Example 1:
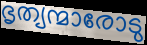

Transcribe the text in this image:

ഭൃത്യന്മാരോടു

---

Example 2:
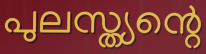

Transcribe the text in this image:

പുലസ്ത്യന്റെ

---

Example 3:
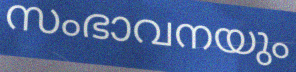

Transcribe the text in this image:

സംഭാവനയും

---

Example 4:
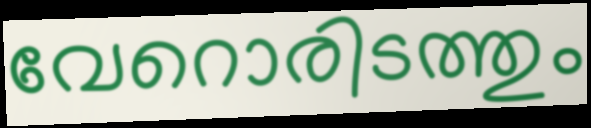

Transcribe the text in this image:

വേറൊരിടത്തും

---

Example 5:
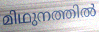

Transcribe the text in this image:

മിഥുനത്തിൽ